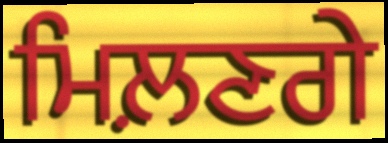
ਮਿਲ਼ਣਗੇ